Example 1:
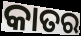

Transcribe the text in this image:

କାତର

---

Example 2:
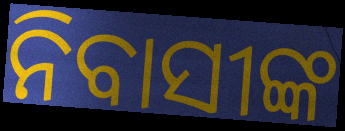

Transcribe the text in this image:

ନିବାସୀଙ୍କ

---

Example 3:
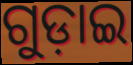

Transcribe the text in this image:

ଗୁଡ଼ାଇ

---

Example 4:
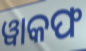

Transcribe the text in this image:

ୱାକଫ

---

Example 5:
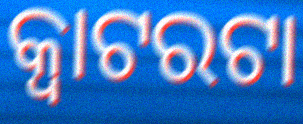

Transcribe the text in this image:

କ୍ଵାଟରଟା